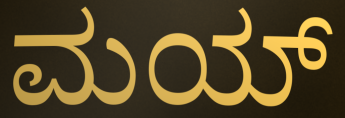
ಮಯ್